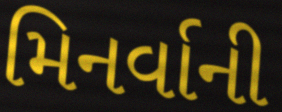
મિનર્વાની